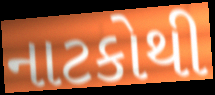
નાટકોથી